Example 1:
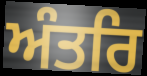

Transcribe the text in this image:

ਅੰਤਰਿ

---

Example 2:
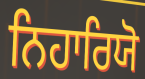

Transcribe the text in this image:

ਨਿਹਾਰਿਯੋ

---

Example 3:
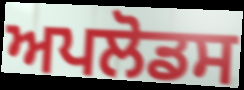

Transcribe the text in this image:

ਅਪਲੋਡਸ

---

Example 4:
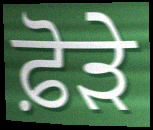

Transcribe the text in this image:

ਫ਼ੋੜੇ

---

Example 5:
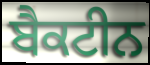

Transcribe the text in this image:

ਬੈਕਟੀਨ